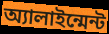
অ্যালাইন্মেন্ট